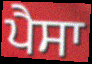
ਪੈਸਾ